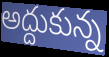
అద్దుకున్న